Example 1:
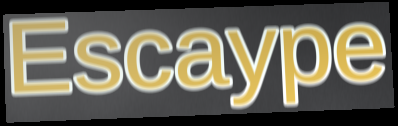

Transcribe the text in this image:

Escaype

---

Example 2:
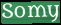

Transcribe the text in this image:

Somy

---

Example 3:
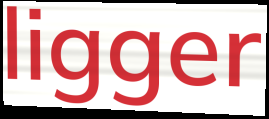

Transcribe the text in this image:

ligger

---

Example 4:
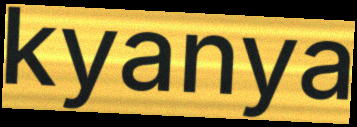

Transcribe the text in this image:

kyanya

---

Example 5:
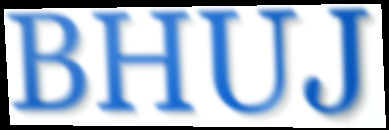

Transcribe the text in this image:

BHUJ